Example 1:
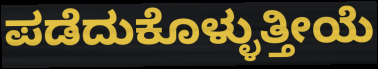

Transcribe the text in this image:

ಪಡೆದುಕೊಳ್ಳುತ್ತೀಯೆ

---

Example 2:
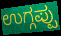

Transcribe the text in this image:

ಉಗ್ಗಪ್ಪು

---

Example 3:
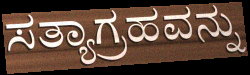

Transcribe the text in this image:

ಸತ್ಯಾಗ್ರಹವನ್ನು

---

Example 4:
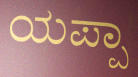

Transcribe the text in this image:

ಯಪ್ಪಾ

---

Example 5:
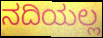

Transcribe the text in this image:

ನದಿಯಲ್ಲ